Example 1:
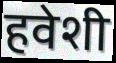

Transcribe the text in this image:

हवेशी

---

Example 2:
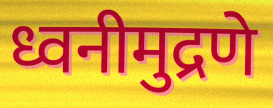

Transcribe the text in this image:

ध्वनीमुद्रणे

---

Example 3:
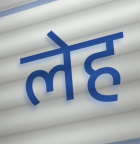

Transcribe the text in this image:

लेह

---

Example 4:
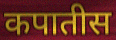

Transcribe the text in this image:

कपातीस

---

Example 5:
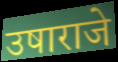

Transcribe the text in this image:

उषाराजे